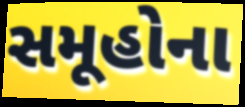
સમૂહોના